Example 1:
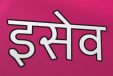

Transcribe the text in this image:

इसेव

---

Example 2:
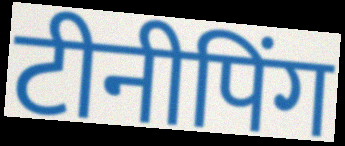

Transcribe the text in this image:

टीनीपिंग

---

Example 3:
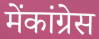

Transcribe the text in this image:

मेंकांग्रेस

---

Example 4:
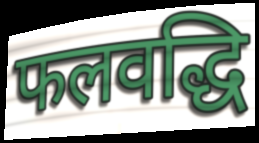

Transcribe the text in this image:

फलवद्धि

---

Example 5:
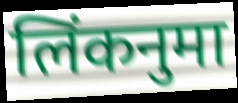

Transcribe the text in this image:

लिंकनुमा